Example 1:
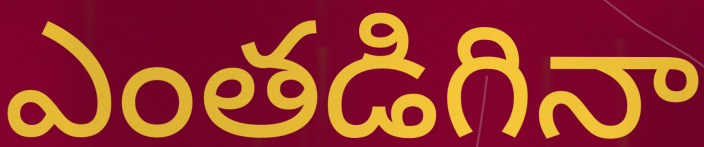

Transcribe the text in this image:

ఎంతడిగినా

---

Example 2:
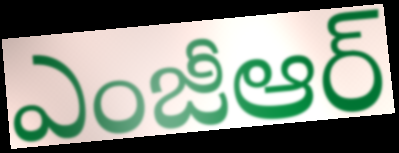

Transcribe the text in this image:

ఎంజీఆర్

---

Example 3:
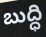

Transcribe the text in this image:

బుద్ధి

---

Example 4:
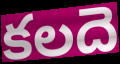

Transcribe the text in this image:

కలదె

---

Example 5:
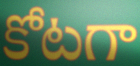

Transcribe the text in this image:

కోటగా